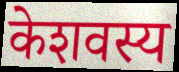
केशवस्य